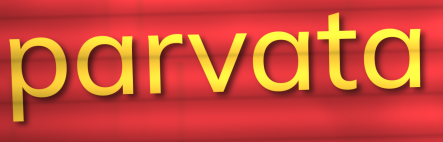
parvata